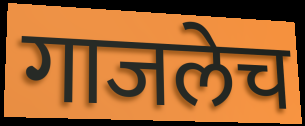
गाजलेच